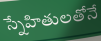
స్నేహితులతోనే